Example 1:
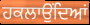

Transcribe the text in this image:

ਹਕਲਾਉਂਦਿਆਂ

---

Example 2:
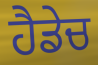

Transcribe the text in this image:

ਹੈਡੇਚ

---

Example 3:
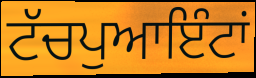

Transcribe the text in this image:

ਟੱਚਪੁਆਇੰਟਾਂ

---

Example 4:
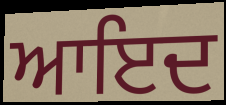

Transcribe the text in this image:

ਆਇਦ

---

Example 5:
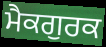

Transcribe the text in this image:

ਮੈਕਗੁਰਕ